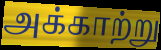
அக்காற்று